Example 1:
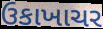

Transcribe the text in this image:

ઉકાખાચર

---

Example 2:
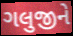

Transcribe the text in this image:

ગલુજીને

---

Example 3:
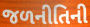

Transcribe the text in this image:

જળનીતિની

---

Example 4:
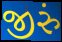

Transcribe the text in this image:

જીરું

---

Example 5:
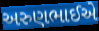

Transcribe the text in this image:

અરુણભાઈએ